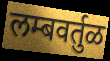
लम्बवर्तुळ